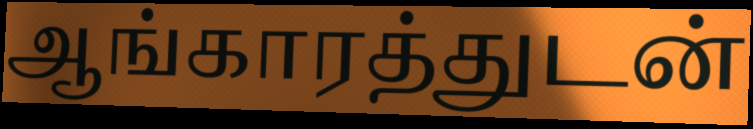
ஆங்காரத்துடன்